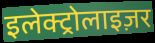
इलेक्ट्रोलाइज़र